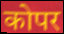
कोपर